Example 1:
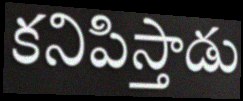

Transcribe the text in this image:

కనిపిస్తాడు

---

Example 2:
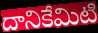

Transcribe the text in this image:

దానికేమిటి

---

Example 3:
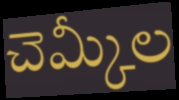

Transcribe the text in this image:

చెమ్కీల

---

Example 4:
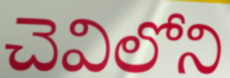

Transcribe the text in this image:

చెవిలోని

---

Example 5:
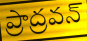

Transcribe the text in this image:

ప్రాద్రవన్